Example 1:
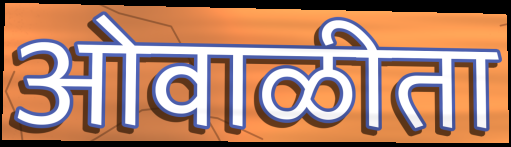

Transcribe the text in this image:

ओवाळीता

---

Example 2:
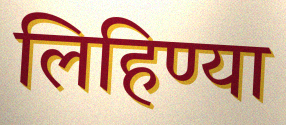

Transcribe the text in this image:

लिहिण्या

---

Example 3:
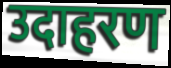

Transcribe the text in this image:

उदाहरण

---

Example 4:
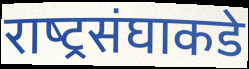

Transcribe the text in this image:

राष्ट्रसंघाकडे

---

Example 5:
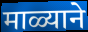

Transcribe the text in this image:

माळ्याने